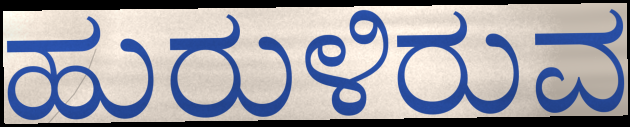
ಹುರುಳಿರುವ